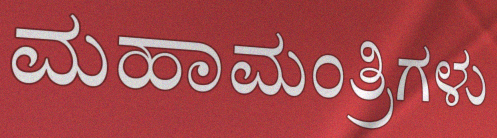
ಮಹಾಮಂತ್ರಿಗಳು